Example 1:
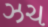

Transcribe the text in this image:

ઝચ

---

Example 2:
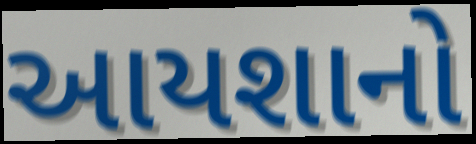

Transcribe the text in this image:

આયશાનો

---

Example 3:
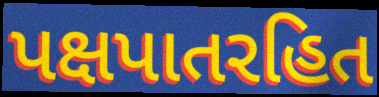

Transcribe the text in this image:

પક્ષપાતરહિત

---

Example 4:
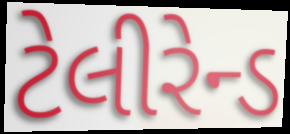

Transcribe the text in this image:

ટેલીરેન્ડ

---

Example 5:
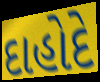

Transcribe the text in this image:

દાહોદે